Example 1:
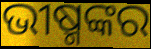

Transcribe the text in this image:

ଭୀଷ୍ମଙ୍କର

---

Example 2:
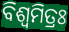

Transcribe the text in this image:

ବିଶ୍ବମିତ୍ରଃ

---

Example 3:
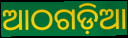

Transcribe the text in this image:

ଆଠଗଡ଼ିଆ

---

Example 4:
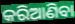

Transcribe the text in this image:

କରିଆଣିବା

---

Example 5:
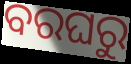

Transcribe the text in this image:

ବରଘରୁ